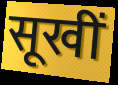
सूखीं